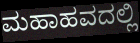
ಮಹಾಹವದಲ್ಲಿ